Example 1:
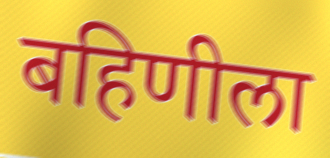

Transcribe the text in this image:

बहिणीला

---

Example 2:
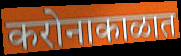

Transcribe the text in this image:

करोनाकाळात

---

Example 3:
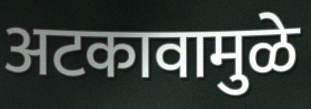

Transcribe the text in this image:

अटकावामुळे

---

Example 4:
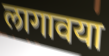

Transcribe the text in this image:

लागावया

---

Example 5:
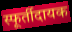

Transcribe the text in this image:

स्फूर्तीदायक